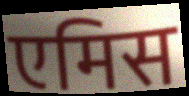
एमिस